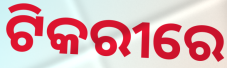
ଟିକରୀରେ